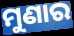
ମୁଣାର